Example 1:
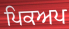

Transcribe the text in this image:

ਪਿਕਅਪ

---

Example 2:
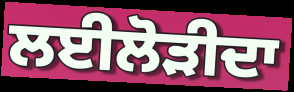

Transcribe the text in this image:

ਲਈਲੋੜੀਦਾ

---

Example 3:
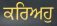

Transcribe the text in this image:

ਕਰਿਅਹੁ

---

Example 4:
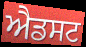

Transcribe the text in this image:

ਐਡਸਟ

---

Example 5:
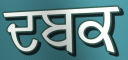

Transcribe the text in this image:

ਦਬਕ